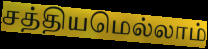
சத்தியமெல்லாம்